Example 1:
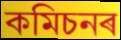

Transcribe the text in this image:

কমিচনৰ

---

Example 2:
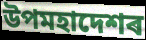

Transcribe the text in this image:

উপমহাদেশৰ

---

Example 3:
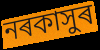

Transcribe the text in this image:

নৰকাসুৰ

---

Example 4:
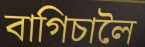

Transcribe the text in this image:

বাগিচালৈ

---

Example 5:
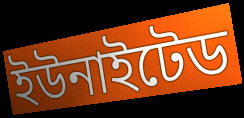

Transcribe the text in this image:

ইউনাইটেড